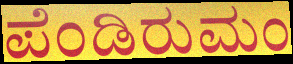
ಪೆಂಡಿರುಮಂ